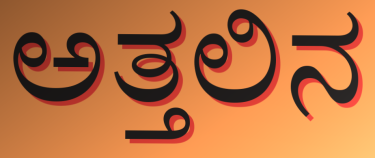
ಅತ್ತಲಿನ